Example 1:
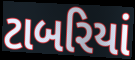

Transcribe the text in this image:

ટાબરિયાં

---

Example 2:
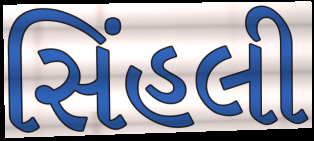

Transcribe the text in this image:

સિંહલી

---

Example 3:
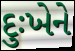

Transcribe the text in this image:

દુઃખેને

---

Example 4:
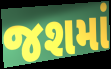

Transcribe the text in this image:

જશમાં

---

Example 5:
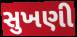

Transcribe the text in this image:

સુખણી